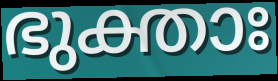
ഭുക്താഃ